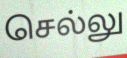
செல்லு